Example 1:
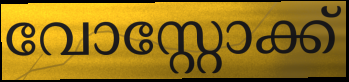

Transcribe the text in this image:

വോസ്റ്റോക്ക്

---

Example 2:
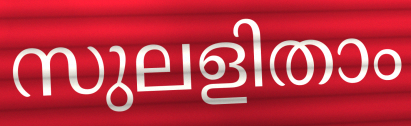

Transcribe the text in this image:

സുലളിതാം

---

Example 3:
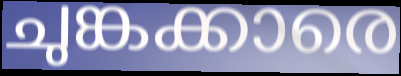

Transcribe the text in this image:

ചുങ്കക്കാരെ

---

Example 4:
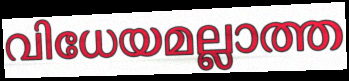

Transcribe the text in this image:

വിധേയമല്ലാത്ത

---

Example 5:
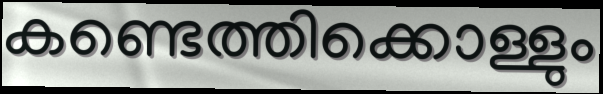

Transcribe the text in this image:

കണ്ടെത്തിക്കൊള്ളും